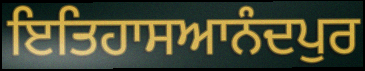
ਇਤਿਹਾਸਆਨੰਦਪੁਰ